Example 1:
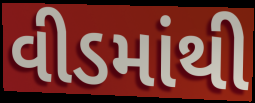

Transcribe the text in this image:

વીડમાંથી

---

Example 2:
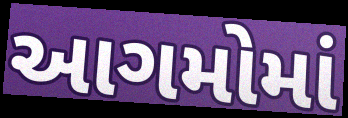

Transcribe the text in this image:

આગમોમાં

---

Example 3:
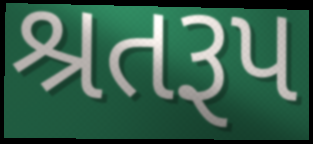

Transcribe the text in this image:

શ્રતરૂપ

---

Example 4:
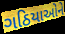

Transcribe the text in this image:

ગઠિયાઓને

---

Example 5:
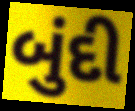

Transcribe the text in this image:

બુંદી